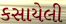
કસાયેલી